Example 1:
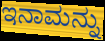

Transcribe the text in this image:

ಇನಾಮನ್ನು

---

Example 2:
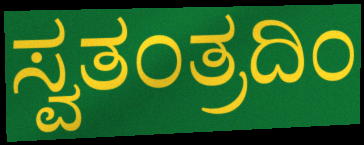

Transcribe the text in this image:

ಸ್ವತಂತ್ರದಿಂ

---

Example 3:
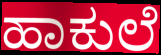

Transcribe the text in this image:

ಹಾಕುಲೆ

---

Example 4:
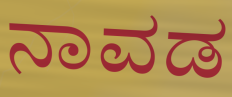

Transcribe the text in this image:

ನಾವಡ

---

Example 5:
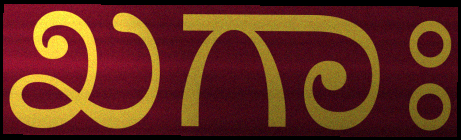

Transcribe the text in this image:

ಖಗಾಃ